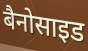
बैनोसाइड